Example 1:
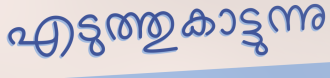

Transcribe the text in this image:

എടുത്തുകാട്ടുന്നു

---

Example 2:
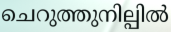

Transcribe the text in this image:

ചെറുത്തുനില്പിൽ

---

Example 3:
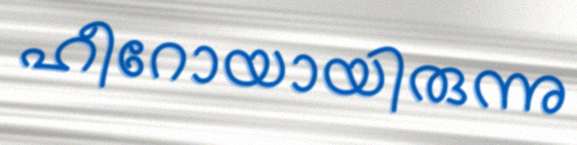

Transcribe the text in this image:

ഹീറോയായിരുന്നു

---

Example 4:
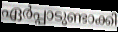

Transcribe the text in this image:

ഏർപ്പാടുണ്ടാക്കി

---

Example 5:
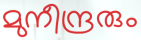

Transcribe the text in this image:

മുനീന്ദ്രരും